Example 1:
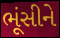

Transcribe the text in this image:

ભૂંસીને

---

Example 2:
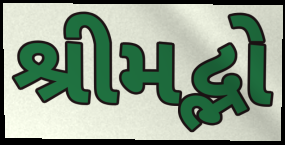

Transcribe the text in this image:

શ્રીમદ્ભો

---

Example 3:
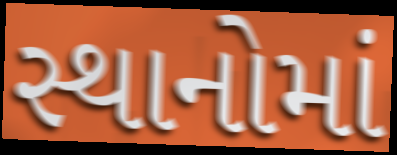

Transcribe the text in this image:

સ્થાનોમાં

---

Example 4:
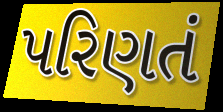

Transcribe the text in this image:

પરિણતં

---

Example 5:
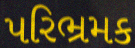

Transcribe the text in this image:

પરિભ્રમક